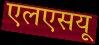
एलएसयू